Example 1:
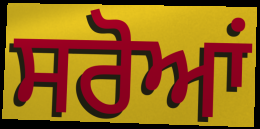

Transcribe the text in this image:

ਸਰੋਆਂ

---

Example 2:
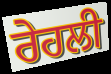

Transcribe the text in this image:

ਰੇਹਲੀ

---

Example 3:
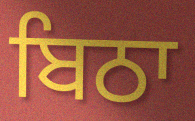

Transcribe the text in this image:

ਬਿਠਾ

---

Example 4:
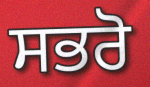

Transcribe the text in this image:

ਸਭਰੋ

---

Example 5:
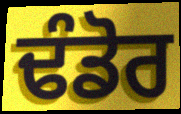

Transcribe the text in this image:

ਢੰਡੋਰ